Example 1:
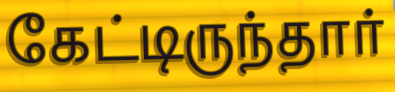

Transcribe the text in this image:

கேட்டிருந்தார்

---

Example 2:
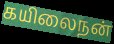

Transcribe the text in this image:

கயிலைநன்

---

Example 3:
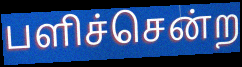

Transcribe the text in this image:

பளிச்சென்ற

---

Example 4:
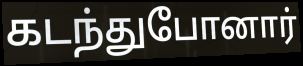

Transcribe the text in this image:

கடந்துபோனார்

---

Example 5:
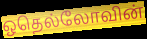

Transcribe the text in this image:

ஒதெல்லோவின்